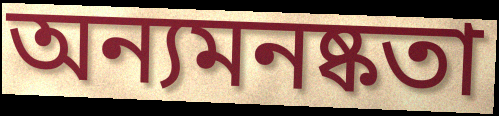
অন্যমনষ্কতা